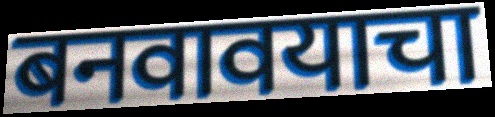
बनवावयाचा